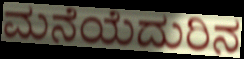
ಮನೆಯೆದುರಿನ